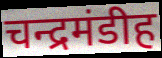
चन्द्रमंडीह